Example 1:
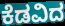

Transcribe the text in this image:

ಕೆಡವಿದ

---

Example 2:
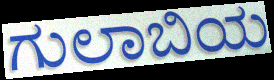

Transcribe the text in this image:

ಗುಲಾಬಿಯ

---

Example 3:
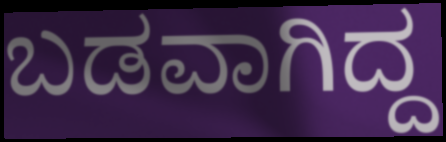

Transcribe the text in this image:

ಬಡವಾಗಿದ್ದ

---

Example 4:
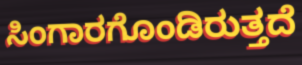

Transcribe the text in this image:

ಸಿಂಗಾರಗೊಂಡಿರುತ್ತದೆ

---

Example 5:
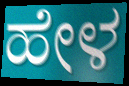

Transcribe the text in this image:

ಹೇಳ